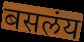
बसलंय